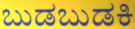
ಬುಡಬುಡಕಿ